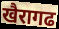
खैरागढ